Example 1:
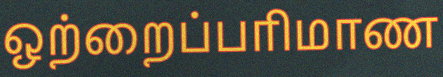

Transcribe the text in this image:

ஒற்றைப்பரிமாண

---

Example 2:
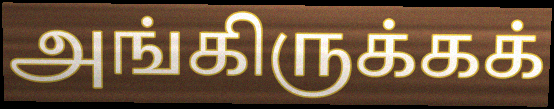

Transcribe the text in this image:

அங்கிருக்கக்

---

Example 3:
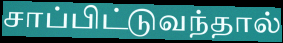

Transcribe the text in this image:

சாப்பிட்டுவந்தால்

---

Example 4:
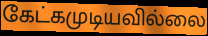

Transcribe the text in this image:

கேட்கமுடியவில்லை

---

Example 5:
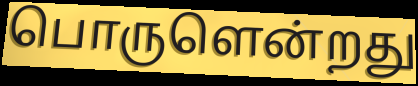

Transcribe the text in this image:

பொருளென்றது